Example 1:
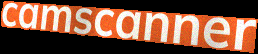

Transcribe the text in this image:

camscanner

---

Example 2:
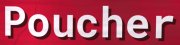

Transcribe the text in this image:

Poucher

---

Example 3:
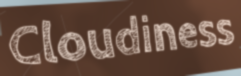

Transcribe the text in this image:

Cloudiness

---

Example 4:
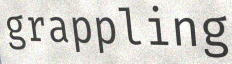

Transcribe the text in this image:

grappling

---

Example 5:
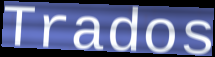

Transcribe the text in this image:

Trados